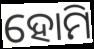
ହୋମି